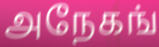
அநேகங்